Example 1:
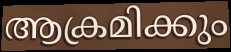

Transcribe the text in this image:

ആക്രമിക്കും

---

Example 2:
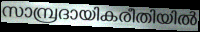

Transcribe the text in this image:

സാമ്പ്രദായികരീതിയിൽ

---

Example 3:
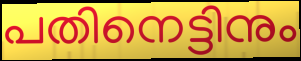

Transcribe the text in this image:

പതിനെട്ടിനും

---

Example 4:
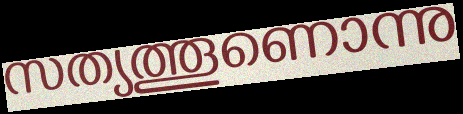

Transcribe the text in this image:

സത്യത്തൂണൊന്നു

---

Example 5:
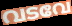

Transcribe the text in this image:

വടവേ